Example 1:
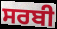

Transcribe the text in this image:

ਸਰਬੀ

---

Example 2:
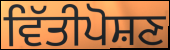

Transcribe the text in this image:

ਵਿੱਤੀਪੋਸ਼ਣ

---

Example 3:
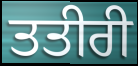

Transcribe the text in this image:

ਤਤੀਰੀ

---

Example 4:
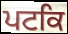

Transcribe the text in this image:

ਪਟਕਿ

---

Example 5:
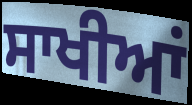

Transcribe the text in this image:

ਸਾਖੀਆਂ